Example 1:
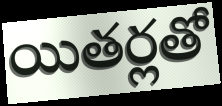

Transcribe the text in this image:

యితర్లతో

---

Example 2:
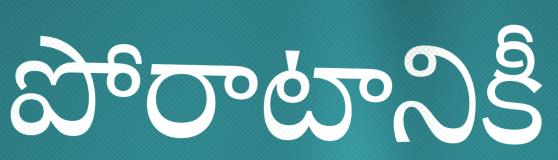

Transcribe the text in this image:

పోరాటానికీ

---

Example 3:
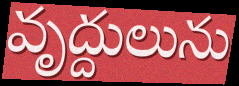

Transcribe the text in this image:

వృద్దులును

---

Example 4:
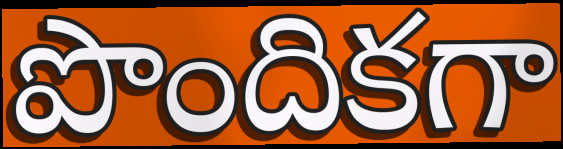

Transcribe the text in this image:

పొందికగా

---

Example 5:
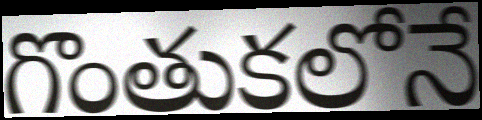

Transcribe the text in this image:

గొంతుకలోనే